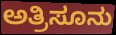
ಅತ್ರಿಸೂನು